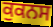
ਕੁਕਨਸ